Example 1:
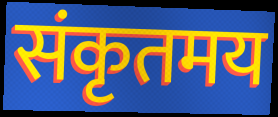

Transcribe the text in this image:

संकृतमय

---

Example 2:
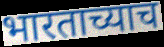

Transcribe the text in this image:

भारताच्याच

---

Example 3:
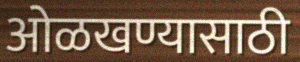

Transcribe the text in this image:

ओळखण्यासाठी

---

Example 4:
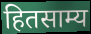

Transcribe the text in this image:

हितसाम्य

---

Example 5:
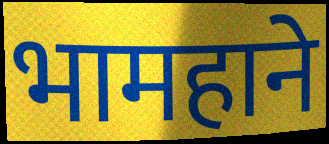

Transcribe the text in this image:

भामहाने